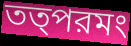
তত্পরমং